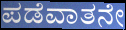
ಪಡೆವಾತನೇ